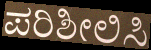
ಪರಿಶೀಲಿಸಿ